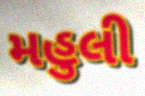
મહુલી